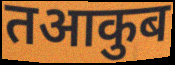
तआकुब